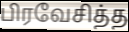
பிரவேசித்த